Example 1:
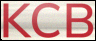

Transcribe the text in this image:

KCB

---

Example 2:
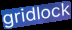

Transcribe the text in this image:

gridlock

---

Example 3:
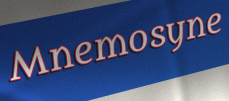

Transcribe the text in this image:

Mnemosyne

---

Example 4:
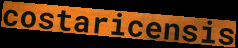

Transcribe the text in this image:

costaricensis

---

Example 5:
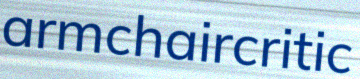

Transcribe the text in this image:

armchaircritic